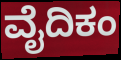
ವೈದಿಕಂ